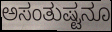
ಅಸಂತುಷ್ಟನೂ